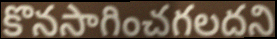
కొనసాగించగలదని